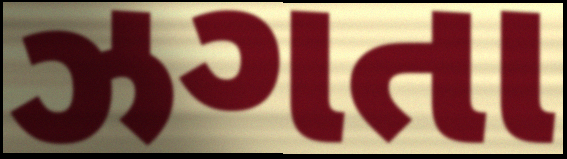
ઝગતા